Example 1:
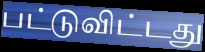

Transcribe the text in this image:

பட்டுவிட்டது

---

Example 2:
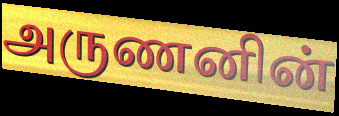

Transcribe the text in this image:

அருணனின்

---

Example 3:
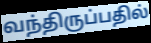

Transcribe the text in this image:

வந்திருப்பதில்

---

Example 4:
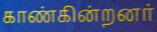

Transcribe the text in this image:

காண்கின்றனர்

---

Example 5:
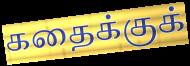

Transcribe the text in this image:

கதைக்குக்